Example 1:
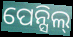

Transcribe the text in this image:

ପେନ୍ସିଲ୍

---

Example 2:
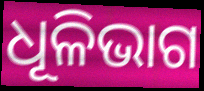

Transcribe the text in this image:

ଧୂଳିଭାଗ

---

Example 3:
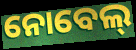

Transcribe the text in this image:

ନୋବେଲ୍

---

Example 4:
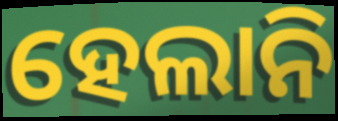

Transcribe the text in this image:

ହେଲାନି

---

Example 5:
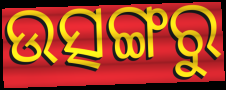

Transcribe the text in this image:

ଉତ୍ସଙ୍ଗରୁ